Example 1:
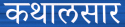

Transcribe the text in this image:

कथालसार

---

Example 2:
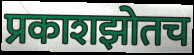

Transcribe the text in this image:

प्रकाशझोतच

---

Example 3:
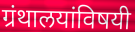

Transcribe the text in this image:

ग्रंथालयांविषयी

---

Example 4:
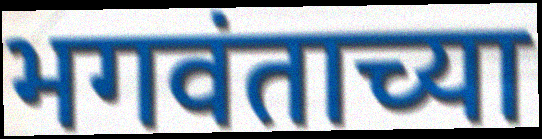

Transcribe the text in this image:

भगवंताच्या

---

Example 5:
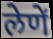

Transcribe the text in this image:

लेणें